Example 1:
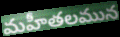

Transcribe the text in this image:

మహీతలమున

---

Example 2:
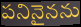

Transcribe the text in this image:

పనినైనను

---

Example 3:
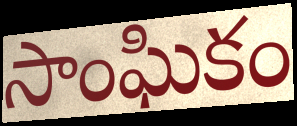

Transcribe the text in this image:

సాంఘికం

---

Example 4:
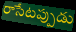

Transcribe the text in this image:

రాసేటప్పుడు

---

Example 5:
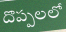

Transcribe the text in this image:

దొప్పలలో